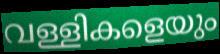
വള്ളികളെയും